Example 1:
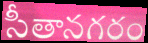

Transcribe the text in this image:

సీతానగరం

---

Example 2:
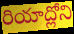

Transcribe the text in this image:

రియాద్లోని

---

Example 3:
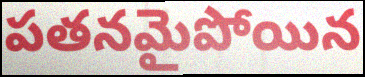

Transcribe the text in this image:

పతనమైపోయిన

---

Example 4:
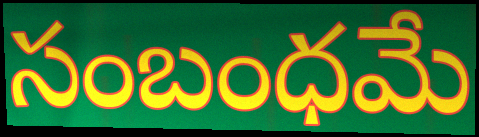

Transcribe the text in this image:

సంబంధమే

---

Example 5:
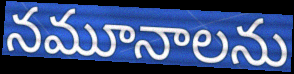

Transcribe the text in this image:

నమూనాలను